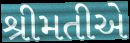
શ્રીમતીએ